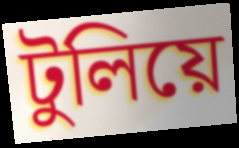
টুলিয়ে